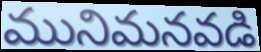
మునిమనవడి